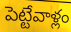
పెట్టేవాళ్లం